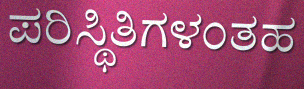
ಪರಿಸ್ಥಿತಿಗಳಂತಹ